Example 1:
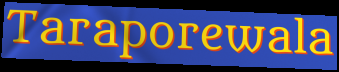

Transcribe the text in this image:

Taraporewala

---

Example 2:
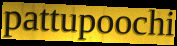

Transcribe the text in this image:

pattupoochi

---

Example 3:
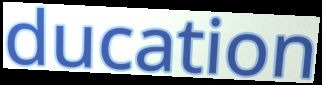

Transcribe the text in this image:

ducation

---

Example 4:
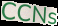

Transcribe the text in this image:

CCNs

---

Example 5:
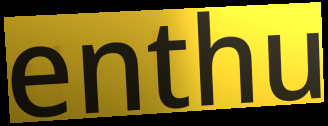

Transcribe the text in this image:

enthu